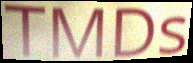
TMDs